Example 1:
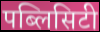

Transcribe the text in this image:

पब्लिसिटी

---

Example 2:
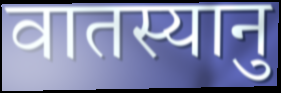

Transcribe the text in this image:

वातस्यानु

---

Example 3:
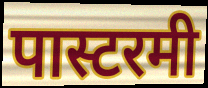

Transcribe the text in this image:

पास्टरमी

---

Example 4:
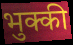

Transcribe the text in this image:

भुक्की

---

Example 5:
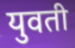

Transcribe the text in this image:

युवती